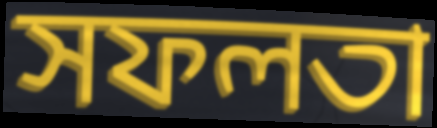
সফলতা